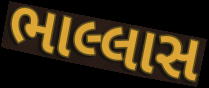
ભાલ્લાસ